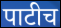
पाटीच